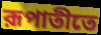
রূপাতীতে